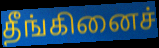
தீங்கினைச்